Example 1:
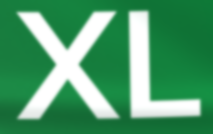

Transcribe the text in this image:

XL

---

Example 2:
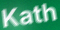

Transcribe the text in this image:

Kath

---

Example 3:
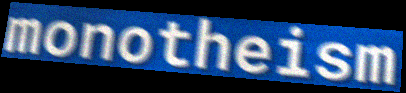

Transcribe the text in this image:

monotheism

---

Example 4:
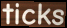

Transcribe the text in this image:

ticks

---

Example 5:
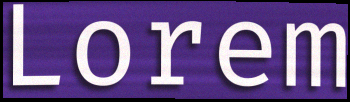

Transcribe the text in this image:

Lorem